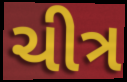
ચીત્ર